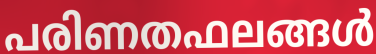
പരിണതഫലങ്ങൾ